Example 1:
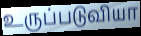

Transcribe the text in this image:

உருப்படுவியா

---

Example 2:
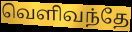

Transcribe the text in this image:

வெளிவந்தே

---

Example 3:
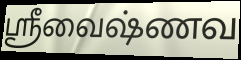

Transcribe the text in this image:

ஸ்ரீவைஷ்ணவ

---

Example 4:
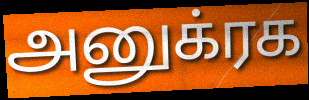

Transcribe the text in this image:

அனுக்ரக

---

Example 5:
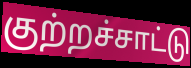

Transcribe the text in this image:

குற்றச்சாட்டு